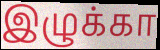
இழுக்கா